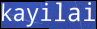
kayilai